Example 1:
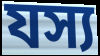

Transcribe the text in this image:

যস্য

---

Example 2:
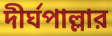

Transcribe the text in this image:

দীর্ঘপাল্লার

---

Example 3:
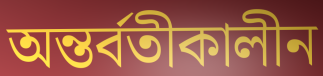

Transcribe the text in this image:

অন্তর্বতীকালীন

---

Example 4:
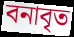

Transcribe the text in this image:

বনাবৃত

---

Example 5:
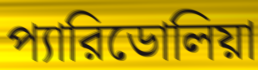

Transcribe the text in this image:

প্যারিডোলিয়া